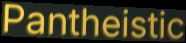
Pantheistic